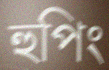
হুপিং